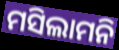
ମସିଲାମନି